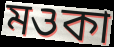
মওকা